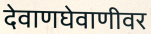
देवाणघेवाणीवर